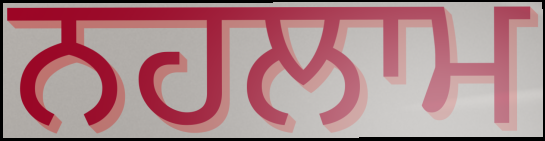
ਨਹਲਾਮ